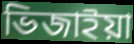
ভিজাইয়া